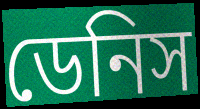
ডেনিস